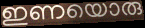
ഇണയൊരു